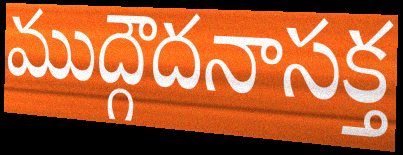
ముద్గౌదనాసక్త